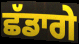
ਛੱਡਾਗੇ